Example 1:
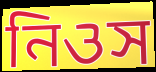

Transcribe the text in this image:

নিওস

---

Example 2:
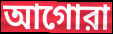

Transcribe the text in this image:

আগোরা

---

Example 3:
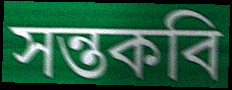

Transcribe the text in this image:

সন্তকবি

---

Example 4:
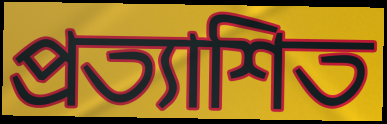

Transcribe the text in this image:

প্রত্যাশিত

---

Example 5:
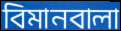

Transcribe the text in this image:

বিমানবালা